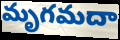
మృగమదా